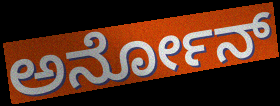
ಅರ್ನೋನ್